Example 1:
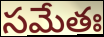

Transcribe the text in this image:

సమేతః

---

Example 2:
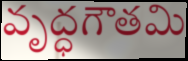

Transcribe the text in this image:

వృద్ధగౌతమి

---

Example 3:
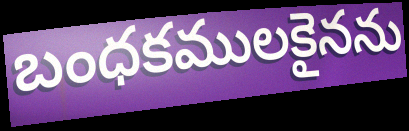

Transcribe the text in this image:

బంధకములకైనను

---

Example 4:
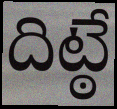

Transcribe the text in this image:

దిట్ఠే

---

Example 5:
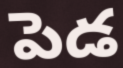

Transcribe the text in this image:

పెడ